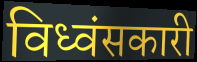
विध्वंसकारी